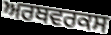
ਅਰਥਵਰਕਸ